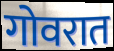
गोवरात